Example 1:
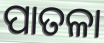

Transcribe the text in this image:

ପାତଳା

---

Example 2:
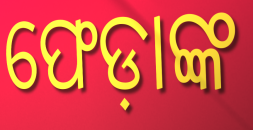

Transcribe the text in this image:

ଫେଡ଼ାଙ୍କ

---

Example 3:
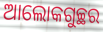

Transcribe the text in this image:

ଆଲୋକଗୁଚ୍ଛର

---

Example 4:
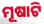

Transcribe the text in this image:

ମୂଷାଟି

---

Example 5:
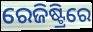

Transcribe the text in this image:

ରେଜିଷ୍ଟ୍ରିରେ